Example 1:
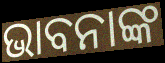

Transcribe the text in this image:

ଭାବନାଙ୍କ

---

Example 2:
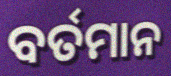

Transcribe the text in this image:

ବର୍ତମାନ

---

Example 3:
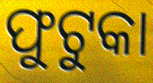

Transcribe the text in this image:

ଫୁଟୁକା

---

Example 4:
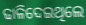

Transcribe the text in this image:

ଢାଳିଦେଇଥିଲେ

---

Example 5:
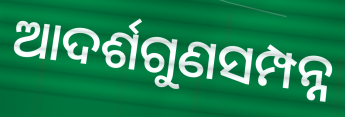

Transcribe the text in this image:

ଆଦର୍ଶଗୁଣସମ୍ପନ୍ନ